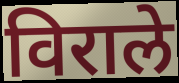
विराले